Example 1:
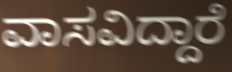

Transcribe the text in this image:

ವಾಸವಿದ್ದಾರೆ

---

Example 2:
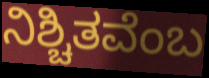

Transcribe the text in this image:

ನಿಶ್ಚಿತವೆಂಬ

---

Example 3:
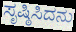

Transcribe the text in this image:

ಸೃಷ್ಠಿಸಿದನು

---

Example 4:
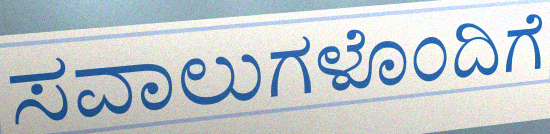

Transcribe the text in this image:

ಸವಾಲುಗಳೊಂದಿಗೆ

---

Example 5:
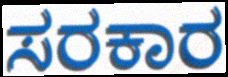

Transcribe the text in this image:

ಸರಕಾರ